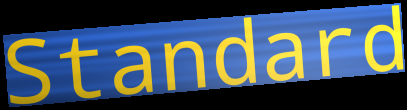
Standard